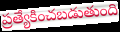
ప్రత్యేకించబడుతుంది